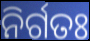
ନିର୍ଗତଃ